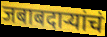
जबाबदार्‍यांचं